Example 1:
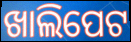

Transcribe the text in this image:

ଖାଲିପେଟ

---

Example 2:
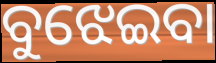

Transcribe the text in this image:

ବୁଝେଇବା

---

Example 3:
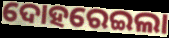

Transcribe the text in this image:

ଦୋହରେଇଲା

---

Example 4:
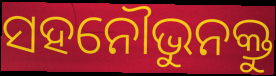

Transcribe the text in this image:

ସହନୌଭୁନକ୍ତୁ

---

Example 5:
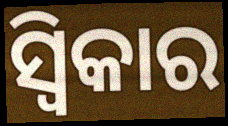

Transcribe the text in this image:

ସ୍ୱିକାର